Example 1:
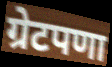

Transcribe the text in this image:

ग्रेटपणा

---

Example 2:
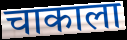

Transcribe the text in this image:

चाकाला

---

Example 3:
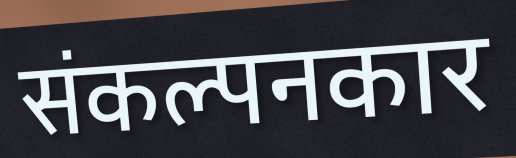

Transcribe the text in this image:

संकल्पनकार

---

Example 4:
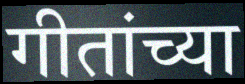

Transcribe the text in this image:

गीतांच्या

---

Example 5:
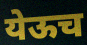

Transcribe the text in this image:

येऊच